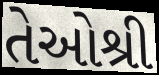
તેઓશ્રી